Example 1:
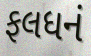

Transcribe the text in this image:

ફલધનં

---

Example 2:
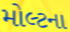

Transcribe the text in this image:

મોલ્ટના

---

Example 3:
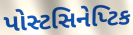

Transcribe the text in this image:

પોસ્ટસિનેપ્ટિક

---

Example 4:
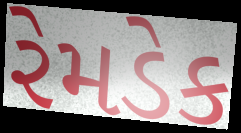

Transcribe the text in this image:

રેમડેક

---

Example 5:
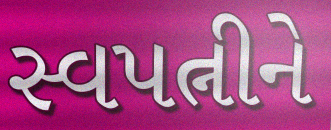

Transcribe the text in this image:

સ્વપત્નીને